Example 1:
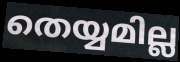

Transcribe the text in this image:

തെയ്യമില്ല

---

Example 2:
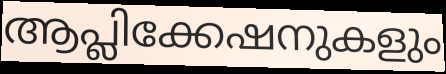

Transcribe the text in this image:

ആപ്ലിക്കേഷനുകളും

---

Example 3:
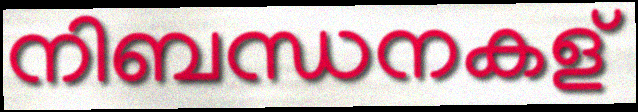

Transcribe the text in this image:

നിബന്ധനകള്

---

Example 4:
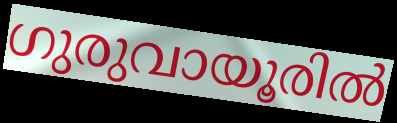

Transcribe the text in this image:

ഗുരുവായൂരിൽ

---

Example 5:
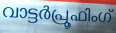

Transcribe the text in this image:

വാട്ടർപ്രൂഫിംഗ്